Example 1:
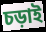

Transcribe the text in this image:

চড়াই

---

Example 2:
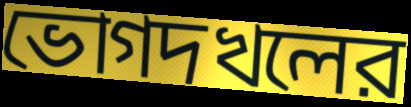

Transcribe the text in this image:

ভোগদখলের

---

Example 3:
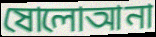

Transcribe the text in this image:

ষোলোআনা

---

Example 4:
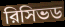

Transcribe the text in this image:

রিসিভড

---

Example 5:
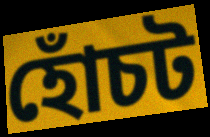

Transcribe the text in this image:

হোঁচট